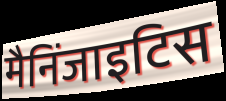
मैनिंजाइटिस